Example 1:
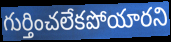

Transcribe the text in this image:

గుర్తించలేకపోయారని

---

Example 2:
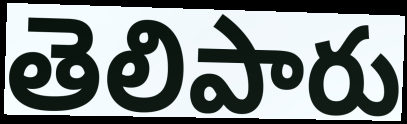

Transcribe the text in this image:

తెలిపారు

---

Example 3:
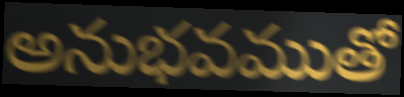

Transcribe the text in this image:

అనుభవముతో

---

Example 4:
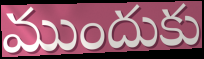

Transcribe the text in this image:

ముందుకు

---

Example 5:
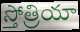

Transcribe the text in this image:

స్తోత్రియా